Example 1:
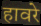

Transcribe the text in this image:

हावरे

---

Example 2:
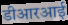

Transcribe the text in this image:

डीआरआई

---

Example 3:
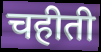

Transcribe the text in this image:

चहीती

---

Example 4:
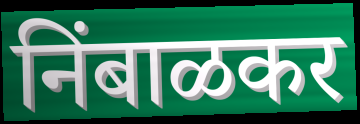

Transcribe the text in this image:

निंबाळकर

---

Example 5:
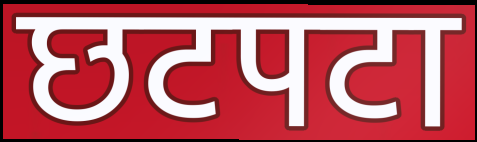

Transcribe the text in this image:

छटपटा